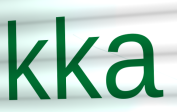
kka